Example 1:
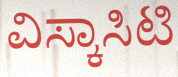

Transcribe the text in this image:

ವಿಸ್ಕಾಸಿಟಿ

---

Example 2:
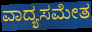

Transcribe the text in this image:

ವಾದ್ಯಸಮೇತ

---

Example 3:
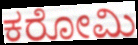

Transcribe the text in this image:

ಕರೋಮಿ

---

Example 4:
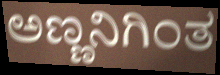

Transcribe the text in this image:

ಅಣ್ಣನಿಗಿಂತ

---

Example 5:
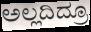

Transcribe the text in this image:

ಅಲ್ಲದಿದ್ರೂ